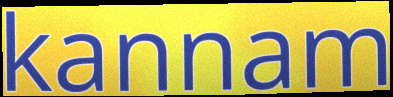
kannam